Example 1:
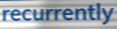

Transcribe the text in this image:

recurrently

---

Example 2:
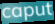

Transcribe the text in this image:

caput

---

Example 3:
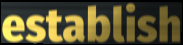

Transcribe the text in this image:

establish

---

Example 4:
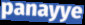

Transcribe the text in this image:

panayye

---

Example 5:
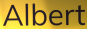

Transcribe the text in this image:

Albert